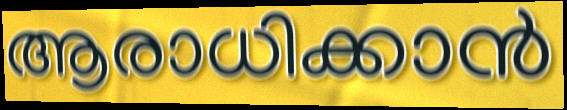
ആരാധിക്കാൻ